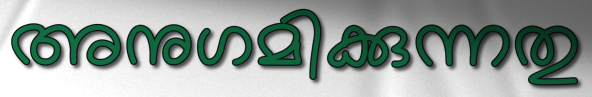
അനുഗമിക്കുന്നതു